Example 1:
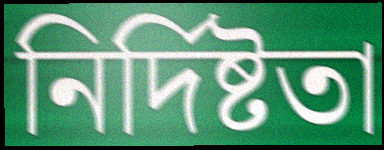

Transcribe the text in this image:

নিৰ্দিষ্টতা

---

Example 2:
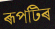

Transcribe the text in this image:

ৰূপটিৰ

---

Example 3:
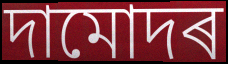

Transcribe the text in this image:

দামোদৰ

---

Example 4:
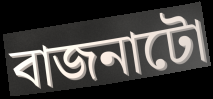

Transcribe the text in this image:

বাজনাটো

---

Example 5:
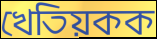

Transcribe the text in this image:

খেতিয়কক